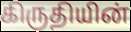
கிருதியின்